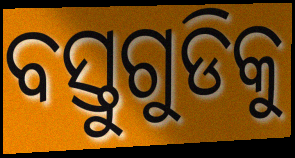
ବସ୍ତୁଗୁଡିକୁ